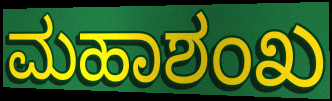
ಮಹಾಶಂಖ